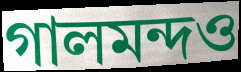
গালমন্দও